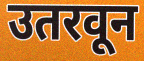
उतरवून